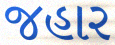
જહાર